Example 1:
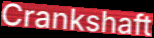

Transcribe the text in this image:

Crankshaft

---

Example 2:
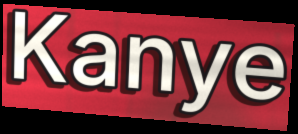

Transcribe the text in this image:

Kanye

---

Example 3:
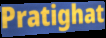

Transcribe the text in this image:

Pratighat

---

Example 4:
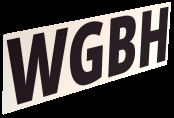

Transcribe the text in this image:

WGBH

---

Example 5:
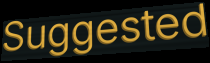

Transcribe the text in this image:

Suggested